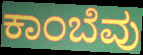
ಕಾಂಬೆವು